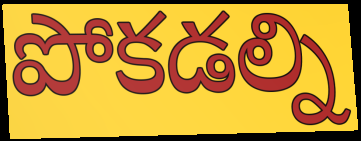
పోకడల్ని